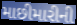
માછીમારીની